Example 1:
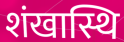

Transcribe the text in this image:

शंखास्थि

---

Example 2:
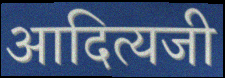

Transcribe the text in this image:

आदित्यजी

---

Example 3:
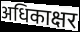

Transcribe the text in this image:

अधिकाक्षर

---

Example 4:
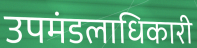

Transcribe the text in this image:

उपमंडलाधिकारी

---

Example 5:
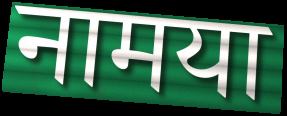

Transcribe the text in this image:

नामया